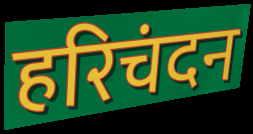
हरिचंदन